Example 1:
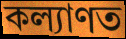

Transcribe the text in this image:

কল্যাণত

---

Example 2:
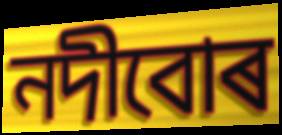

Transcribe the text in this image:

নদীবোৰ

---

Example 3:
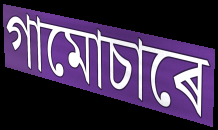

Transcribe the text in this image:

গামোচাৰে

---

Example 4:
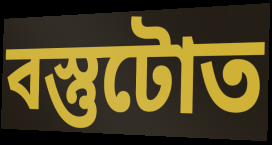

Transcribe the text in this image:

বস্তুটোত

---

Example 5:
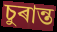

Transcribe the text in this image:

চুৰান্ত